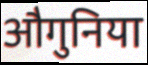
औगुनिया